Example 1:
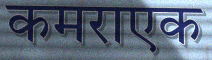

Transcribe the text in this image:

कमराएक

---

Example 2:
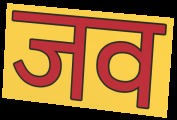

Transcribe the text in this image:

जव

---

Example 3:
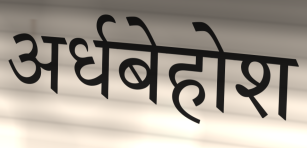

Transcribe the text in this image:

अर्धबेहोश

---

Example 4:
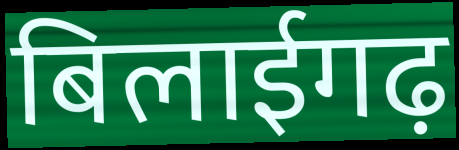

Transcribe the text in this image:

बिलाईगढ़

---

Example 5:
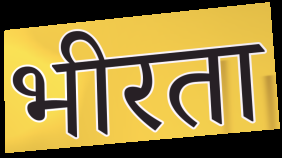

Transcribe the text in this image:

भीरता